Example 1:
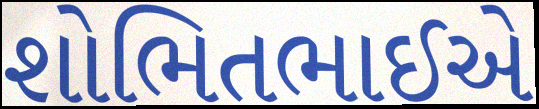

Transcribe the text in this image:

શોભિતભાઈએ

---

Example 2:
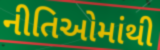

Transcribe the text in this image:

નીતિઓમાંથી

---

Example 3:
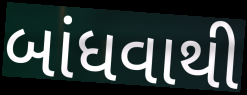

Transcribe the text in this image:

બાંધવાથી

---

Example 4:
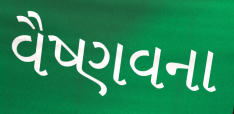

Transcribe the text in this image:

વૈષ્ણવના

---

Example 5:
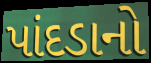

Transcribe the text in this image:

પાંદડાનો